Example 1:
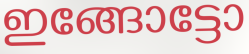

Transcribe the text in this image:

ഇങ്ങോട്ടോ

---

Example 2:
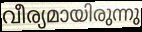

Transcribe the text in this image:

വീര്യമായിരുന്നു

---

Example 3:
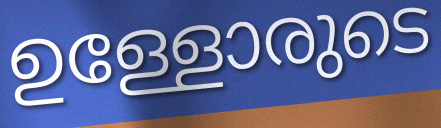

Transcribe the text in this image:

ഉള്ളോരുടെ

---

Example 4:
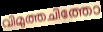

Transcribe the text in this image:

വിമുത്തചിത്തോ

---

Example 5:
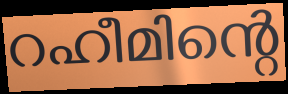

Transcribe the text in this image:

റഹീമിന്റെ